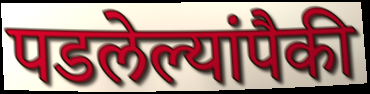
पडलेल्यांपैकी